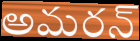
అమరన్